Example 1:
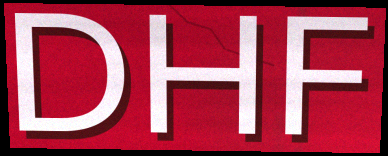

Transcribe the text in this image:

DHF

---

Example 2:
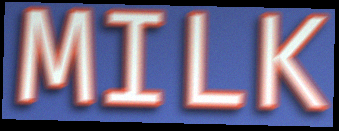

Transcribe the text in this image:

MILK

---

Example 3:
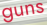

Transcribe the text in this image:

guns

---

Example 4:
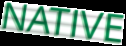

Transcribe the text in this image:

NATIVE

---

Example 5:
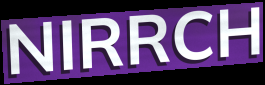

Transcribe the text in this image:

NIRRCH